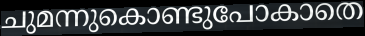
ചുമന്നുകൊണ്ടുപോകാതെ